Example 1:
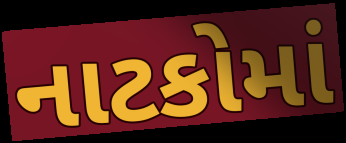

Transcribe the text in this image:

નાટકોમાં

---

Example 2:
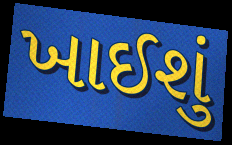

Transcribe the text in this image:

ખાઈશું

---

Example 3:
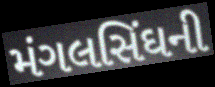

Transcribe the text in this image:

મંગલસિંઘની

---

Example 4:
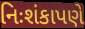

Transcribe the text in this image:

નિઃશંકાપણે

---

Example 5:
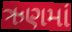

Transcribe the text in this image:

ઋણમાં